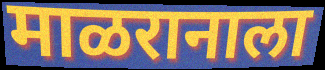
माळरानाला